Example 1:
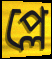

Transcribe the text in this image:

প্লে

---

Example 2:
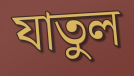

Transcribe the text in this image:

যাতুল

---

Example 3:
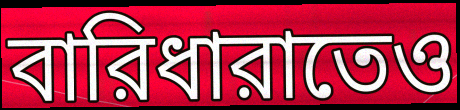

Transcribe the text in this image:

বারিধারাতেও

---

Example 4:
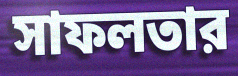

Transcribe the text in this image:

সাফলতার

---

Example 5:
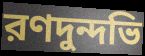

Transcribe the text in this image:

রণদুন্দভি